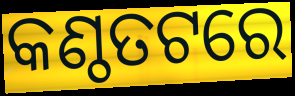
କଣ୍ଠତଟରେ